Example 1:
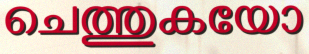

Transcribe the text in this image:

ചെത്തുകയോ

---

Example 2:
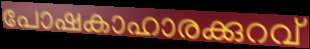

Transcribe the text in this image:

പോഷകാഹാരക്കുറവ്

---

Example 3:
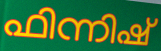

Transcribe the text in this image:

ഫിന്നിഷ്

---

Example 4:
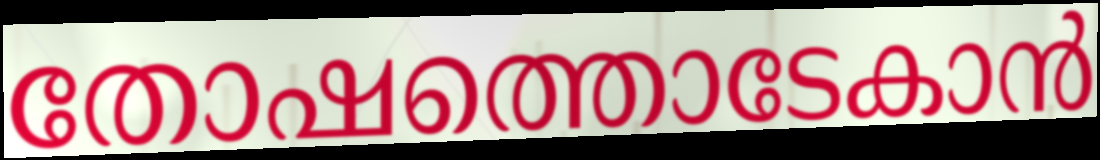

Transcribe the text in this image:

തോഷത്തൊടേകാൻ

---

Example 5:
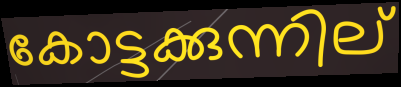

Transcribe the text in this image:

കോട്ടക്കുന്നില്